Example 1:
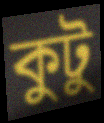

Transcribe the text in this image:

কুটু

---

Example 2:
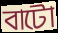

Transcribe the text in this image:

বাটো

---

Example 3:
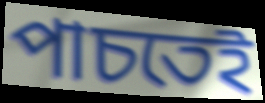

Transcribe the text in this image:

পাচতেই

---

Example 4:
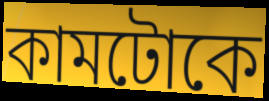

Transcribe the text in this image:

কামটোকে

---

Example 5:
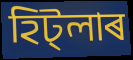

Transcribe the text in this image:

হিট্‌লাৰ